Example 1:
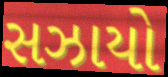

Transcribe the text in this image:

સઝાયો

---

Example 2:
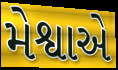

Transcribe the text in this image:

મેશ્વાએ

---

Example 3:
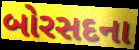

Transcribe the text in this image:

બોરસદના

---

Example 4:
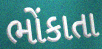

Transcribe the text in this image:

ભોંકાતા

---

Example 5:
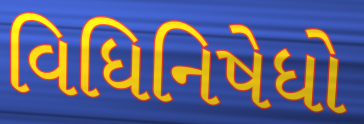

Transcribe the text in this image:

વિધિનિષેધો